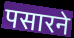
पसारने